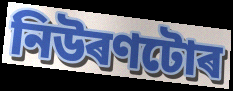
নিউৰণটোৰ